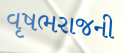
વૃષભરાજની